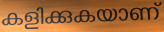
കളിക്കുകയാണ്